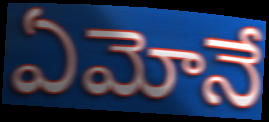
ఏమోనే